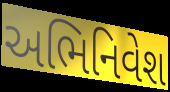
અભિનિવેશ